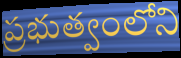
ప్రభుత్వంలోని